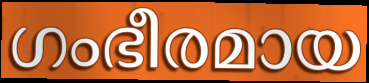
ഗംഭീരമായ